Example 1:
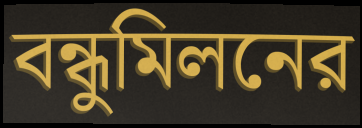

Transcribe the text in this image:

বন্ধুমিলনের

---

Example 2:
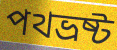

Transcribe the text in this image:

পথভ্রষ্ট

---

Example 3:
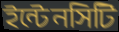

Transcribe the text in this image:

ইন্টেনসিটি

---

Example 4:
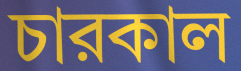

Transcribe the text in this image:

চারকাল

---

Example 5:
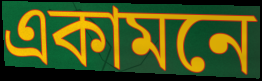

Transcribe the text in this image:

একামনে